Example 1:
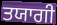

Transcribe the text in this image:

ਤਯਾਗੀ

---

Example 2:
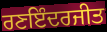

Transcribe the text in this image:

ਰਣਇੰਦਰਜੀਤ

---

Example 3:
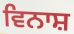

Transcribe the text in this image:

ਵਿਨਾਸ਼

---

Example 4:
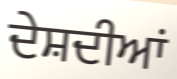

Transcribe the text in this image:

ਦੇਸ਼ਦੀਆਂ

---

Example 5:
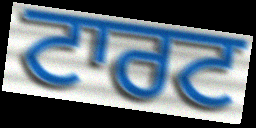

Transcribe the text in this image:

ਟਾਰਟ